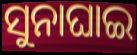
ସୁନାଘାଇ